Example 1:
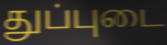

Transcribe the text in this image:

துப்புடை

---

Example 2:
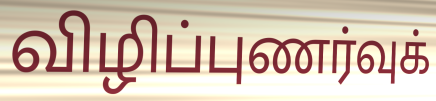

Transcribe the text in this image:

விழிப்புணர்வுக்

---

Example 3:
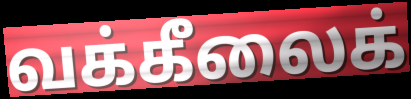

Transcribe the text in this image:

வக்கீலைக்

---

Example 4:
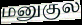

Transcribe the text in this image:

மனுகுல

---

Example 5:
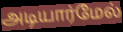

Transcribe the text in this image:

அடியார்மேல்